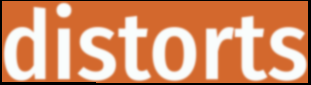
distorts